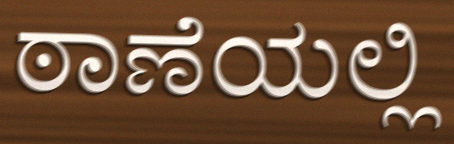
ಠಾಣೆಯಲ್ಲಿ